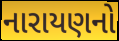
નારાયણનો